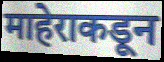
माहेराकडून